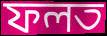
ফলত